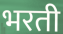
भरती